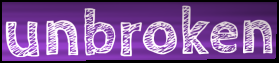
unbroken